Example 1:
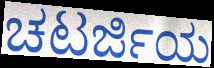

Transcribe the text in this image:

ಚಟರ್ಜಿಯ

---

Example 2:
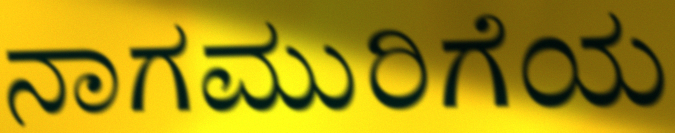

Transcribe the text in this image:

ನಾಗಮುರಿಗೆಯ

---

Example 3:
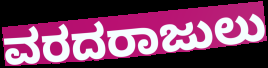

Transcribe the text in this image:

ವರದರಾಜುಲು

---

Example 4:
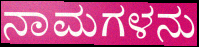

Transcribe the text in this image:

ನಾಮಗಳನು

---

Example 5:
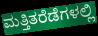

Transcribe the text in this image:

ಮತ್ತಿತರೆಡೆಗಳಲ್ಲಿ